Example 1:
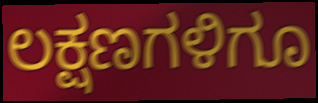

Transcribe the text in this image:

ಲಕ್ಷಣಗಳಿಗೂ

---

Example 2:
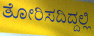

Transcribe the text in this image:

ತೋರಿಸದಿದ್ದಲ್ಲಿ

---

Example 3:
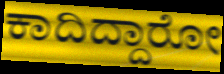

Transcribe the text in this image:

ಕಾದಿದ್ದಾರೋ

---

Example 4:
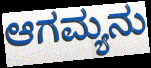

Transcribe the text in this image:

ಆಗಮ್ಯನು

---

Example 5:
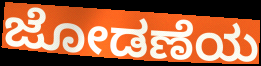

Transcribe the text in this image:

ಜೋಡಣೆಯ